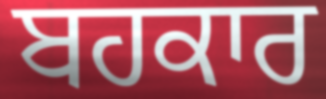
ਬਹਕਾਰ